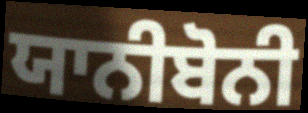
ਯਾਨੀਬੋਨੀ